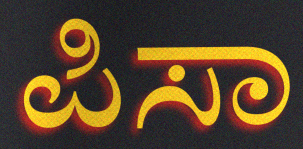
ಪಿಸಾ